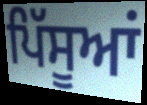
ਪਿੱਸੂਆਂ